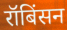
रॉबिंसन